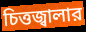
চিত্তজ্বালার